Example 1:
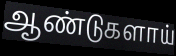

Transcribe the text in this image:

ஆண்டுகளாய்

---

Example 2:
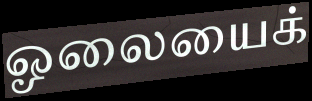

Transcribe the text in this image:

ஓலையைக்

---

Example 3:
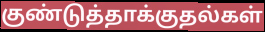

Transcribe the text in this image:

குண்டுத்தாக்குதல்கள்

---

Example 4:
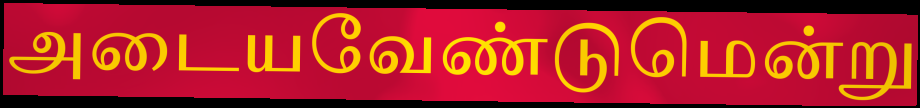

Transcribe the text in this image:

அடையவேண்டுமென்று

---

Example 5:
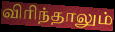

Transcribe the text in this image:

விரிந்தாலும்